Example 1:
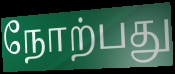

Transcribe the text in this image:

நோற்பது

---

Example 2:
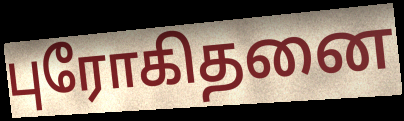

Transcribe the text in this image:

புரோகிதனை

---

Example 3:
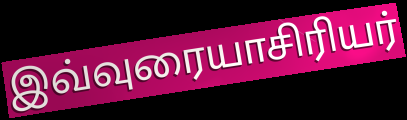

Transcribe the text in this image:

இவ்வுரையாசிரியர்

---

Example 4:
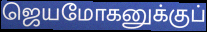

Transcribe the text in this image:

ஜெயமோகனுக்குப்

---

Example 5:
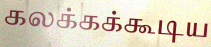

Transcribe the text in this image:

கலக்கக்கூடிய